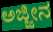
ಅಜ್ಜೀನ